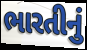
ભારતીનું